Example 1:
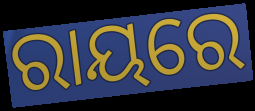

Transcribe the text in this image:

ରାୟରେ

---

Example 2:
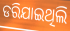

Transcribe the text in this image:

ଡରିଯାଇଥିଲି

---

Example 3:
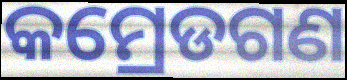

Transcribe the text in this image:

କମ୍ରେଡଗଣ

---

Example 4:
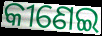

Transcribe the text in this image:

କୀଣେଇ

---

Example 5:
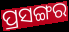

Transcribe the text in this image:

ପ୍ରସଙ୍ଗର